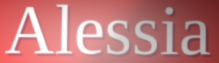
Alessia